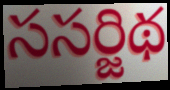
ససర్జిథ